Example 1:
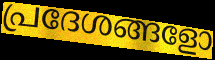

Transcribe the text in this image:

പ്രദേശങ്ങളോ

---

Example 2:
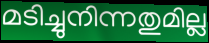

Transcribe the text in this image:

മടിച്ചുനിന്നതുമില്ല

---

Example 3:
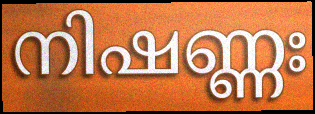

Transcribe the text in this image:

നിഷണ്ണഃ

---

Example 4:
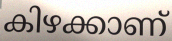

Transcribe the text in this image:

കിഴക്കാണ്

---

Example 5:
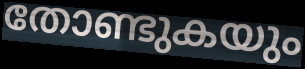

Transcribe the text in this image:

തോണ്ടുകയും